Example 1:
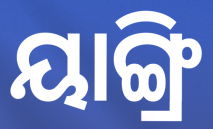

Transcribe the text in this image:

ୟାଙ୍ଗ୍ରି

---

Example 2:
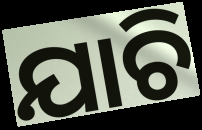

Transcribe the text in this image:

ଯାଚି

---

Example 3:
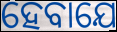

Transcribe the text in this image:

ହେବାଯେ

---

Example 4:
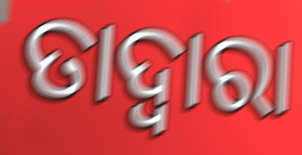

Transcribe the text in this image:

ତାଦ୍ବାରା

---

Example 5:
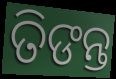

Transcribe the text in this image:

ତିଙନ୍ତ